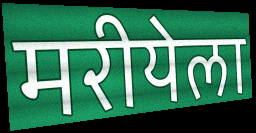
मरीयेला